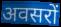
अवसरों